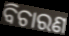
ବିଚାରଣ